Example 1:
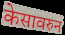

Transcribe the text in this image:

केसावरुन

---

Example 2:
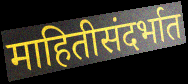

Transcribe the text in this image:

माहितीसंदर्भात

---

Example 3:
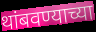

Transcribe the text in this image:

थांबवण्याच्या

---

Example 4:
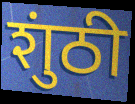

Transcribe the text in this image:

शुंठी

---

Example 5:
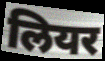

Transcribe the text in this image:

लियर